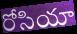
రోసియా